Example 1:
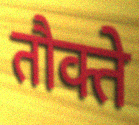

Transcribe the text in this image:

तौक्ते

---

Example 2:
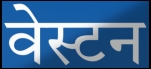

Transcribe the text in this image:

वेस्टन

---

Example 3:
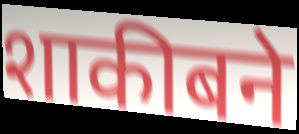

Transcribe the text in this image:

शाकीबने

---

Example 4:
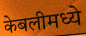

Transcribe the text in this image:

केबलीमध्ये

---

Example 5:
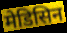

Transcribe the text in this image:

मेडिसिन